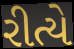
રીત્યે